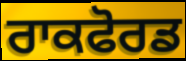
ਰਾਕਫੋਰਡ